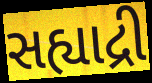
સહ્યાદ્રી